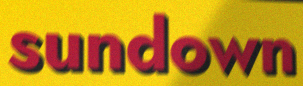
sundown